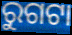
ରୁଗଟା